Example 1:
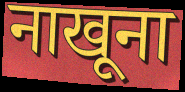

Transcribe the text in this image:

नाखूना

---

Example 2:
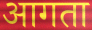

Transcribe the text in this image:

आगता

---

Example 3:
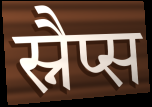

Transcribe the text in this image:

स्नैप्स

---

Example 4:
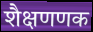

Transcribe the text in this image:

शैक्षणणक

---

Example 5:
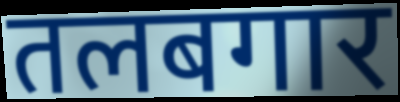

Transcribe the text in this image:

तलबगार